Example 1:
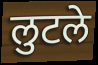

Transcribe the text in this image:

लुटले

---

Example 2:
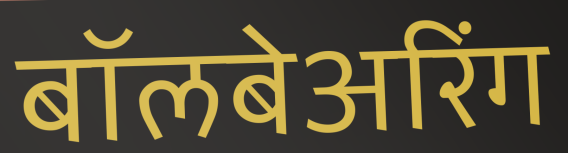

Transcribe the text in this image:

बॉलबेअरिंग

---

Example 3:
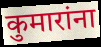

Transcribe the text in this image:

कुमारांना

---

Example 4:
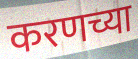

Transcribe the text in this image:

करणच्या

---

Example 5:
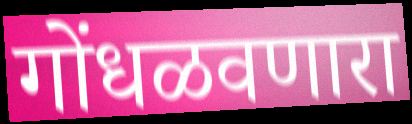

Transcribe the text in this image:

गोंधळवणारा